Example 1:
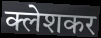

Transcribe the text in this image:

क्लेशकर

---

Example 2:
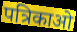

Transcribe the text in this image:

पत्रिकाओ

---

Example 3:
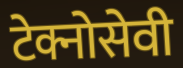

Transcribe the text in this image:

टेक्नोसेवी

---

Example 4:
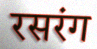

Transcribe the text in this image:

रसरंग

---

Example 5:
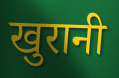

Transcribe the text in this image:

खुरानी